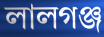
লালগঞ্জ